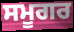
ਸਮੂਗਰ